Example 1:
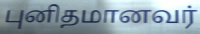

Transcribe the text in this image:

புனிதமானவர்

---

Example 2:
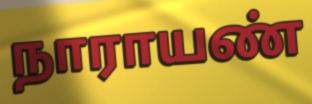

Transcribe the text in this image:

நாராயண்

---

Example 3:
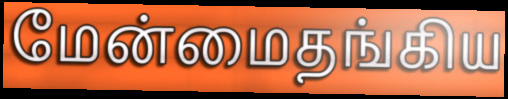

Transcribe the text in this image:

மேன்மைதங்கிய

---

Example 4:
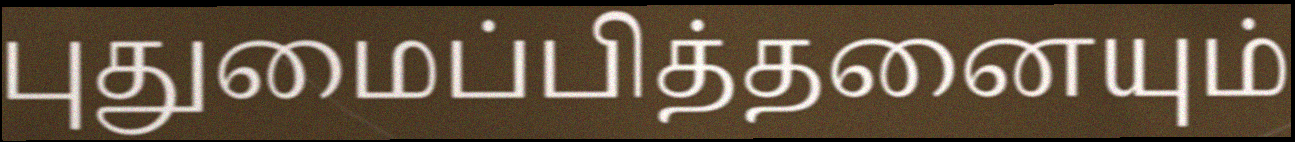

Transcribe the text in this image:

புதுமைப்பித்தனையும்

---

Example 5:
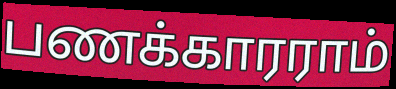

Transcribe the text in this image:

பணக்காரராம்